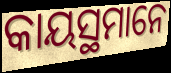
କାୟସ୍ଥମାନେ